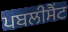
ਪਬਲੀਸੈਂਟ